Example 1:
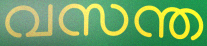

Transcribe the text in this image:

വസന്ത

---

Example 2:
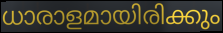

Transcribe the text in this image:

ധാരാളമായിരിക്കും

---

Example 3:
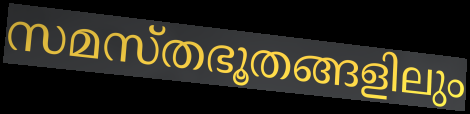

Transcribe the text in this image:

സമസ്തഭൂതങ്ങളിലും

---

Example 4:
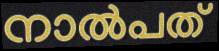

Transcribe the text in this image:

നാൽപത്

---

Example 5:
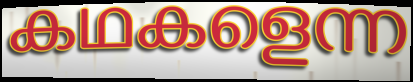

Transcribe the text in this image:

കഥകളെന്ന